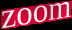
zoom